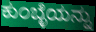
ಕುಂಬ್ಳೆಯನ್ನು